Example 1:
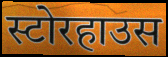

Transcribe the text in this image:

स्टोरहाउस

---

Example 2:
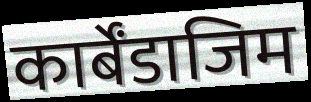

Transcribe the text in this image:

कार्बेंडाजिम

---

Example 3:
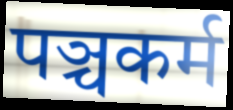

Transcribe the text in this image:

पञ्चकर्म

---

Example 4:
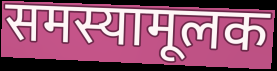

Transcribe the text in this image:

समस्यामूलक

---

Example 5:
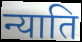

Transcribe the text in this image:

न्याति